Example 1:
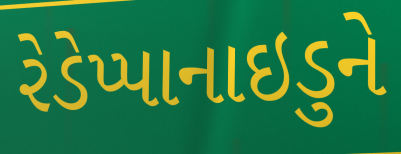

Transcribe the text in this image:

રેડેપ્પાનાઇડુને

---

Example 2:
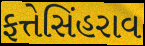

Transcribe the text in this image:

ફત્તેસિંહરાવ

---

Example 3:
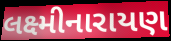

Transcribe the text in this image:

લક્ષ્મીનારાયણ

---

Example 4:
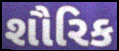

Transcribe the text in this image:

શૌરિક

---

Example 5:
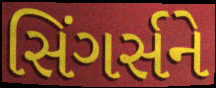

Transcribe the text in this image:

સિંગર્સને